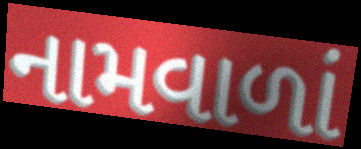
નામવાળાં